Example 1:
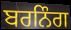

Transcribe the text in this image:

ਬਰਨਿੰਗ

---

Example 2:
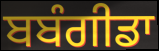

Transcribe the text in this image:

ਬਬੰਗੀਡਾ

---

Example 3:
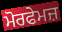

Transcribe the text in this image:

ਮੋਰਫੇਮਜ਼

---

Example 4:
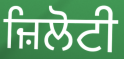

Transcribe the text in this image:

ਜ਼ਿਲੋਟੀ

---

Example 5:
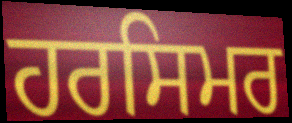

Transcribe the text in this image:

ਹਰਸਿਮਰ